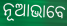
ନୂଆଭାବେ